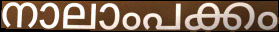
നാലാംപക്കം